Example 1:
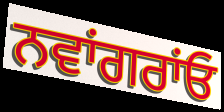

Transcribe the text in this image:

ਨਵਾਂਗਰਾਂਓ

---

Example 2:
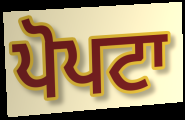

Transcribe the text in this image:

ਪੋਪਟਾ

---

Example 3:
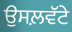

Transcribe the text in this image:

ਉਸਲ਼ਵੱਟੇ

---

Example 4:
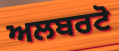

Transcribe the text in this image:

ਅਲਬਰਟੋ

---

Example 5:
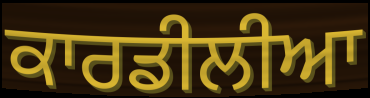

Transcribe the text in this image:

ਕਾਰਡੀਲੀਆ